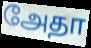
அேதா